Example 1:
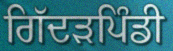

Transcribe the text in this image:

ਗਿੱਦੜਪਿੰਡੀ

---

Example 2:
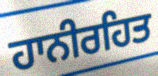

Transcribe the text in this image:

ਹਾਨੀਰਹਿਤ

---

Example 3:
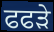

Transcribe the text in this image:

ਫਫਡ਼ੇ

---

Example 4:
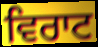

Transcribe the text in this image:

ਵਿਰਾਟ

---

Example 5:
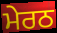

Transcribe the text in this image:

ਮੇਰਠ